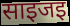
साइजइ